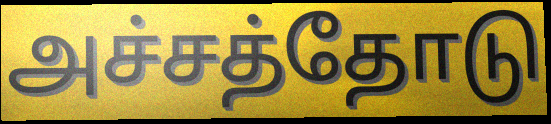
அச்சத்தோடு